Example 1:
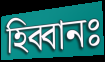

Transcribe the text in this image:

হিব্বানঃ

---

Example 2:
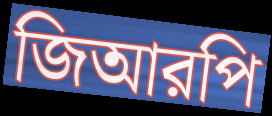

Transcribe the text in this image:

জিআরপি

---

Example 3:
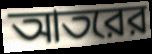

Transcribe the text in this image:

আতরের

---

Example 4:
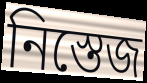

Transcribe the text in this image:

নিস্তেজ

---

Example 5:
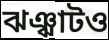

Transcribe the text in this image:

ঝঞ্ঝাটও